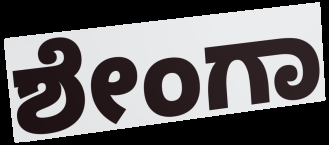
ಶೇಂಗಾ